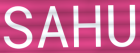
SAHU